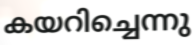
കയറിച്ചെന്നു